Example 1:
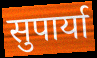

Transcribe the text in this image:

सुपार्या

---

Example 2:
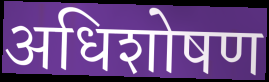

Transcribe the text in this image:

अधिशोषण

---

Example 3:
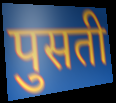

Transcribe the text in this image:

पुसती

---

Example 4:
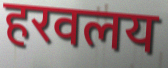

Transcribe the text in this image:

हरवलय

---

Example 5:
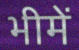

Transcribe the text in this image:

भीमें